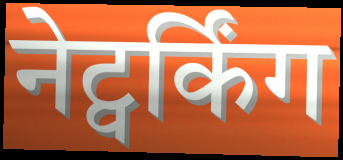
नेट्वर्किंग